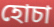
হোচা